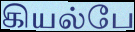
கியல்பே